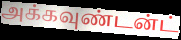
அக்கவுண்டன்ட்